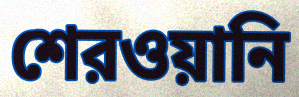
শেরওয়ানি